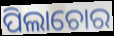
ପିଲାଚୋର